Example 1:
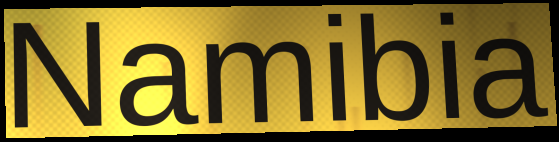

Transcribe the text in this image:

Namibia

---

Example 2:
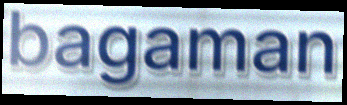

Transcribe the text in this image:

bagaman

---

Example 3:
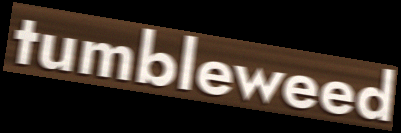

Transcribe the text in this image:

tumbleweed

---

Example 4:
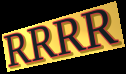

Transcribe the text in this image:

RRRR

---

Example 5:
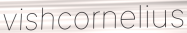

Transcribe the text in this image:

vishcornelius